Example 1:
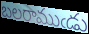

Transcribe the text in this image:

బలరాముఁడు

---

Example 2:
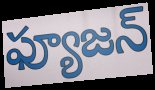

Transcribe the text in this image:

ఫ్యూజన్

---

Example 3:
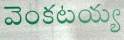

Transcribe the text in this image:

వెంకటయ్య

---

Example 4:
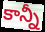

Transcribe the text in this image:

కాన్నీ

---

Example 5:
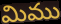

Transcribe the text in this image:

మిము